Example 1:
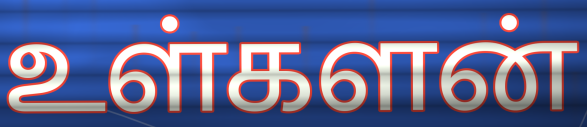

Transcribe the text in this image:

உள்களன்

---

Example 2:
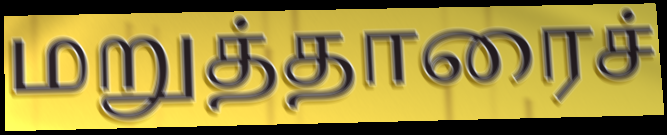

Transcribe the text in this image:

மறுத்தாரைச்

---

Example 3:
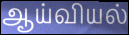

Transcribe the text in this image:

ஆய்வியல்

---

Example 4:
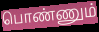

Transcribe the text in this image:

பொண்ணும்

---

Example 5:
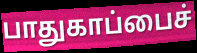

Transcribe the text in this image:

பாதுகாப்பைச்